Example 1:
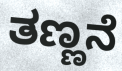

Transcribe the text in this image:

ತಣ್ಣನೆ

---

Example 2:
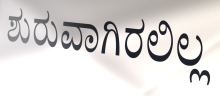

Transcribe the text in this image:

ಶುರುವಾಗಿರಲಿಲ್ಲ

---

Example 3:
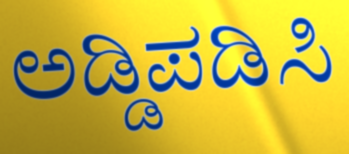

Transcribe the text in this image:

ಅಡ್ಡಿಪಡಿಸಿ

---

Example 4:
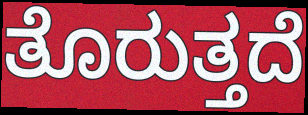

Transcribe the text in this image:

ತೊರುತ್ತದೆ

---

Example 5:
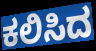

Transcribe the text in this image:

ಕಲಿಸಿದ